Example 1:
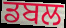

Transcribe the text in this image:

ਡਬਲ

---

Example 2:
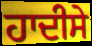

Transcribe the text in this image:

ਹਾਦੀਸੇ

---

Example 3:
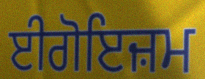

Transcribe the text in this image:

ਈਗੋਇਜ਼ਮ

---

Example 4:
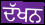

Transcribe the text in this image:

ਦੱਖਨ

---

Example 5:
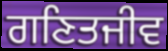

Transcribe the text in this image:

ਗਣਿਤਜੀਵ